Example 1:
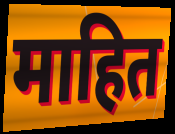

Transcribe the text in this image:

माहित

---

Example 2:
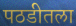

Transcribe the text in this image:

पठडीतला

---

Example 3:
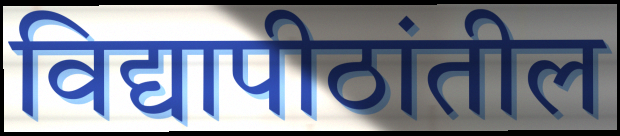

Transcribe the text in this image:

विद्यापीठांतील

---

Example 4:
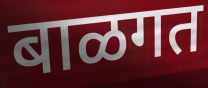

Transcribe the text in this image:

बाळगत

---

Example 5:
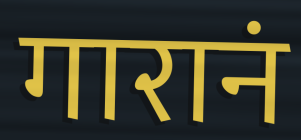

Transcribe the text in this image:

गारानं